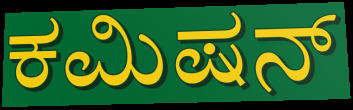
ಕಮಿಷನ್